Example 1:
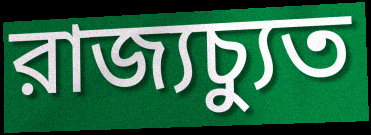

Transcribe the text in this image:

রাজ্যচ্যুত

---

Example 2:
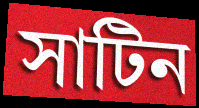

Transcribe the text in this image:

সাটিন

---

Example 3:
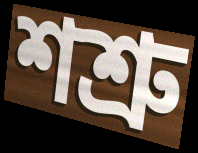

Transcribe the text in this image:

শশ্রু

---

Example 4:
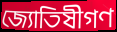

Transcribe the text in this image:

জ্যোতিষীগণ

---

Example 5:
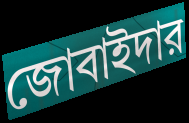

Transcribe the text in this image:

জোবাইদার